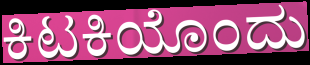
ಕಿಟಕಿಯೊಂದು